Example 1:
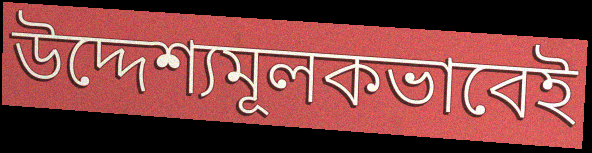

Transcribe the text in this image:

উদ্দেশ্যমূলকভাবেই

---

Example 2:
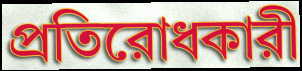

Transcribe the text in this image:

প্রতিরোধকারী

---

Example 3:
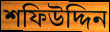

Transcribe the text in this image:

শফিউদ্দিন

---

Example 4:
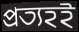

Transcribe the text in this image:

প্রত্যহই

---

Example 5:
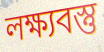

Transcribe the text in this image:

লক্ষ্যবস্তু